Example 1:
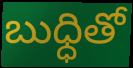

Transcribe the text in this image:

బుధ్ధితో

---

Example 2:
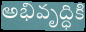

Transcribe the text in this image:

అభివృద్ధికి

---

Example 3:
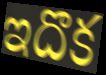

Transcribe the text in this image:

ఇదొక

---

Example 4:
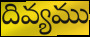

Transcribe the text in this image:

దివ్యము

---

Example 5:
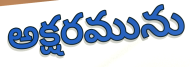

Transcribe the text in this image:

అక్షరమును